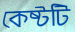
কেষ্টটি